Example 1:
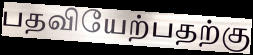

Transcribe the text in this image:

பதவியேற்பதற்கு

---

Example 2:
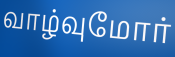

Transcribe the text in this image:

வாழ்வுமோர்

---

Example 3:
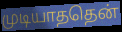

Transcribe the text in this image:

முடியாததென்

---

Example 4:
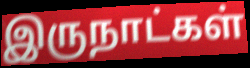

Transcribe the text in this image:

இருநாட்கள்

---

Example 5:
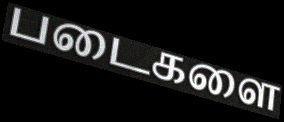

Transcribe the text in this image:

படைகளை